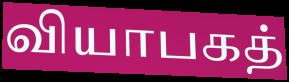
வியாபகத்